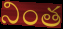
నింత